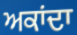
ਅਕਾਂਦਾ